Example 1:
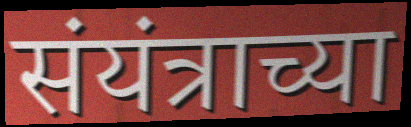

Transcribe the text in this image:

संयंत्राच्या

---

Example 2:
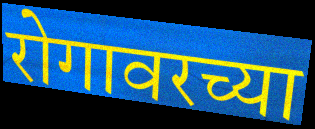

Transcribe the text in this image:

रोगावरच्या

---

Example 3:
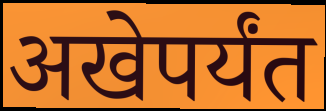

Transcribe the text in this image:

अखेपर्यंत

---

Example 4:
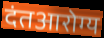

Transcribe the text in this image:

दंतआरोग्य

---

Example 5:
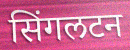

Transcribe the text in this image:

सिंगलटन